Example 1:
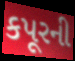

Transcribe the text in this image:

કપૂરની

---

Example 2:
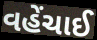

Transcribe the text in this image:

વહેંચાઈ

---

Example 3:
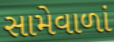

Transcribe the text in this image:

સામેવાળાં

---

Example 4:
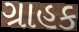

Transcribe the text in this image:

ગ્રાહક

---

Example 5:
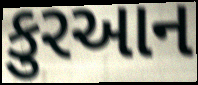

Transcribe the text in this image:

કુરઆન